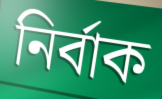
নিৰ্বাক